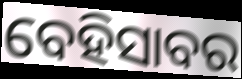
ବେହିସାବର